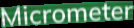
Micrometer